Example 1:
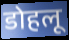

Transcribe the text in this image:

डोहलू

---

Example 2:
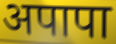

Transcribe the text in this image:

अपापा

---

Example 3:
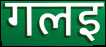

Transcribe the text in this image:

गलइ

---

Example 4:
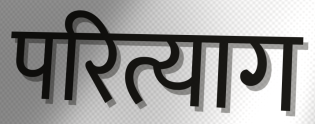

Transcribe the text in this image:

परित्याग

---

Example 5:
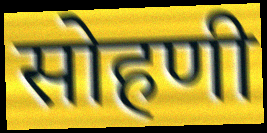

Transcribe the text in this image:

सोहणी